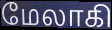
மேலாகி